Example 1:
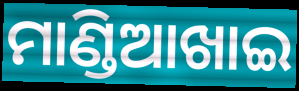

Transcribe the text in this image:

ମାଣ୍ଡିଆଖାଇ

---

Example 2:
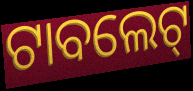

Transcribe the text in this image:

ଟାବଲେଟ୍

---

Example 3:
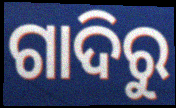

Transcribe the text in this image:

ଗାଦିରୁ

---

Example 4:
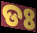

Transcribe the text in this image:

ଡଃ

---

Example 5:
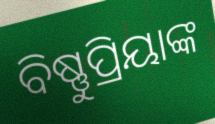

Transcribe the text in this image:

ବିଷ୍ଣୁପ୍ରିୟାଙ୍କ